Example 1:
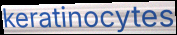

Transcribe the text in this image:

keratinocytes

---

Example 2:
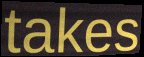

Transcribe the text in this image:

takes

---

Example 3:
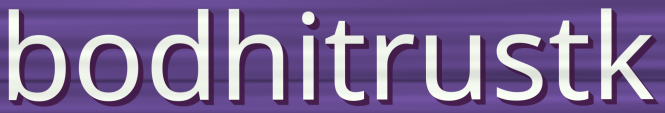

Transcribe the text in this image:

bodhitrustk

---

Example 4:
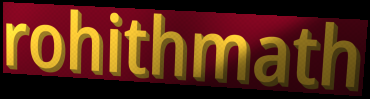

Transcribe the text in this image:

rohithmath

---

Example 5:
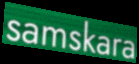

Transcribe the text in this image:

samskara